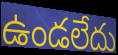
ఉండలేదు